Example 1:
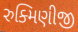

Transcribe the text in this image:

રુક્મિણીજી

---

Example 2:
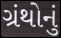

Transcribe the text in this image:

ગ્રંથોનું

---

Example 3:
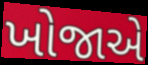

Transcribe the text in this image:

ખોજાએ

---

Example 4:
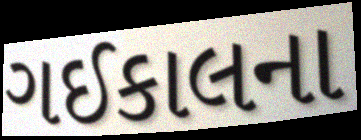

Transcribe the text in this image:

ગઈકાલના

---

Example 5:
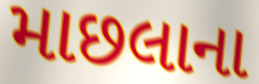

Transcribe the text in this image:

માછલાના